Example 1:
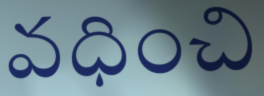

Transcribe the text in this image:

వధించి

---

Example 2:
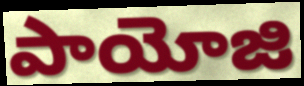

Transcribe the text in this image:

పాయోజి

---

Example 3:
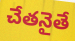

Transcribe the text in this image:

చేతనైతే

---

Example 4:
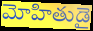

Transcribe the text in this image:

మోహితుడై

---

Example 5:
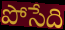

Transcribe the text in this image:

పోసేది